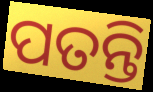
ପତନ୍ତି